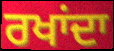
ਰਖਾਂਦਾ